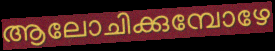
ആലോചിക്കുമ്പോഴേ